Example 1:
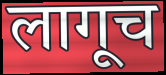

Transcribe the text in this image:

लागूच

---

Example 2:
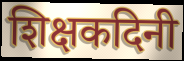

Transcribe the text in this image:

शिक्षकदिनी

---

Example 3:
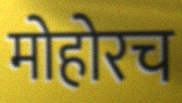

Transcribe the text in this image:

मोहोरच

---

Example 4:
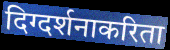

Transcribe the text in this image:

दिग्दर्शनाकरिता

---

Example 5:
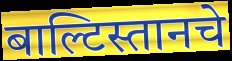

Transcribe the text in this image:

बाल्टिस्तानचे